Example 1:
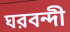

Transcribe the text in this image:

ঘরবন্দী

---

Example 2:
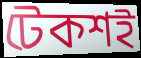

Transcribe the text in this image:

টেকশই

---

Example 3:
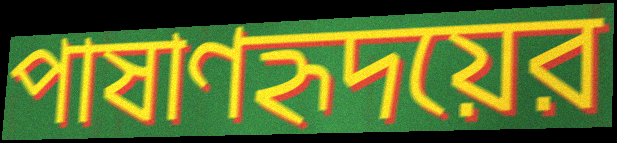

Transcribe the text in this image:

পাষাণহৃদয়ের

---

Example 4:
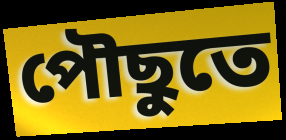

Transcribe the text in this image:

পৌছুতে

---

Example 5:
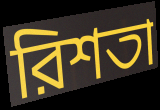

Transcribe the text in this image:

রিশতা